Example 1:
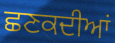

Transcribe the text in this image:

ਛਣਕਦੀਆਂ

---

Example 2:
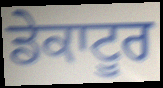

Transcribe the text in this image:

ਡੇਕਾਟੂਰ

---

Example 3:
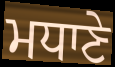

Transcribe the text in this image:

ਮਧਾਣੇ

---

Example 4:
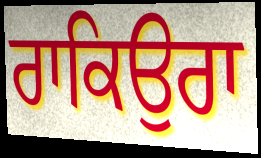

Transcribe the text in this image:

ਰਾਕਿਉਰਾ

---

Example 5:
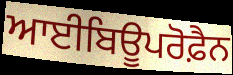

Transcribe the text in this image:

ਆਈਬਿਊਪਰੋਫ਼ੈਨ